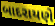
બાદરાયણે